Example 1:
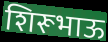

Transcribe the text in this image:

शिरूभाऊ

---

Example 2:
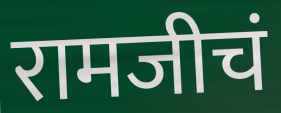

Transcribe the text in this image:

रामजीचं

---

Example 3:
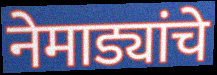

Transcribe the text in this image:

नेमाड्यांचे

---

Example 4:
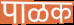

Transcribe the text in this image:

पाळक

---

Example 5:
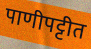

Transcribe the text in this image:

पाणीपट्टीत